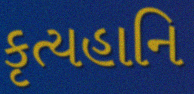
કૃત્યહાનિ